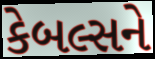
કેબલ્સને